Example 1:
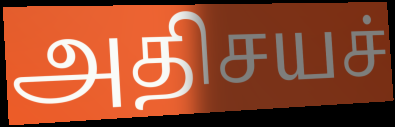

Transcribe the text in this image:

அதிசயச்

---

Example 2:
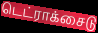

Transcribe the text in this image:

டெட்ராக்சைடு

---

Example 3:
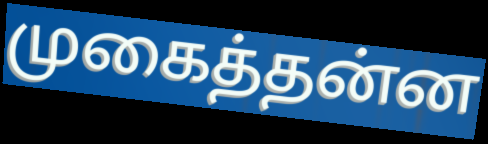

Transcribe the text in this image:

முகைத்தன்ன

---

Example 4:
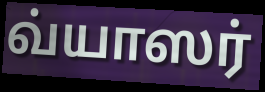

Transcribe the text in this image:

வ்யாஸர்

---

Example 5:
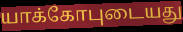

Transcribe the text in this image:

யாக்கோபுடையது